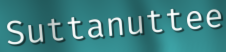
Suttanuttee